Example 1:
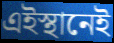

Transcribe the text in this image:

এইস্থানেই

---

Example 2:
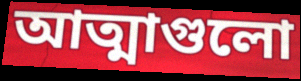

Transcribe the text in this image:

আত্মাগুলো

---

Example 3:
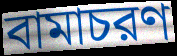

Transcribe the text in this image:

বামাচরণ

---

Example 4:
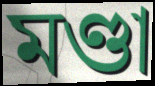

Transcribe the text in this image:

মণ্ডা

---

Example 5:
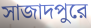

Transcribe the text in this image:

সাজাদপুরে